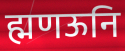
ह्मणऊनि